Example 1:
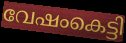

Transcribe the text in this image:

വേഷംകെട്ടി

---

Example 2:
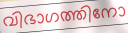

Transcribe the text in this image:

വിഭാഗത്തിനോ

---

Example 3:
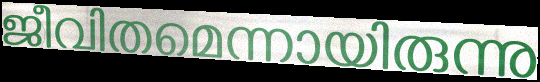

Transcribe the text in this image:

ജീവിതമെന്നായിരുന്നു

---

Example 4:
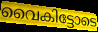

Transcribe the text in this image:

വൈകിട്ടോടെ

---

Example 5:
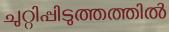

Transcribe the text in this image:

ചുറ്റിപ്പിടുത്തത്തിൽ